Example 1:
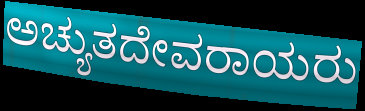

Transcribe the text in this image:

ಅಚ್ಯುತದೇವರಾಯರು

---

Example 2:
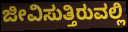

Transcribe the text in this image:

ಜೀವಿಸುತ್ತಿರುವಲ್ಲಿ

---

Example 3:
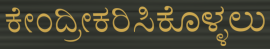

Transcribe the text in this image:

ಕೇಂದ್ರೀಕರಿಸಿಕೊಳ್ಳಲು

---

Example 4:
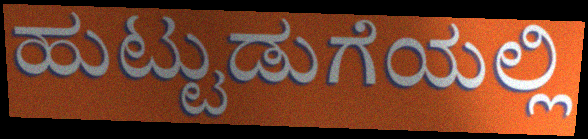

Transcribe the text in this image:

ಹುಟ್ಟುಡುಗೆಯಲ್ಲಿ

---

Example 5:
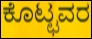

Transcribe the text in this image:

ಕೊಟ್ಟವರ